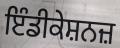
ਇੰਡੀਕੇਸ਼ਨਜ਼